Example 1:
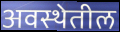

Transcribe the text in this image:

अवस्थेतील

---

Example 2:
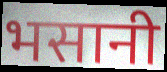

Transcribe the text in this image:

भसानी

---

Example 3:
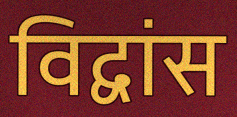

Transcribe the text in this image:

विद्वांस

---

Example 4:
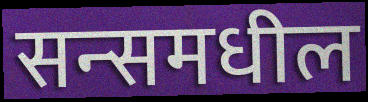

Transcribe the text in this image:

सन्समधील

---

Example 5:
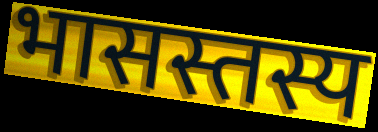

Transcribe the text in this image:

भासस्तस्य